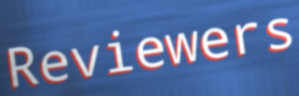
Reviewers